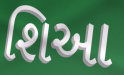
શિઆ